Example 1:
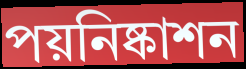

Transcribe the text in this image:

পয়নিষ্কাশন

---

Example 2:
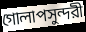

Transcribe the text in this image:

গোলাপসুন্দরী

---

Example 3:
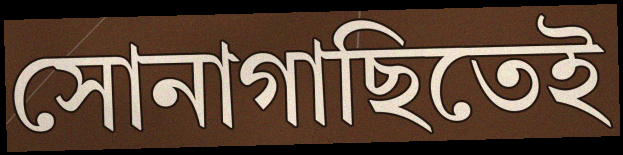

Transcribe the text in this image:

সোনাগাছিতেই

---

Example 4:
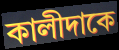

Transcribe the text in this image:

কালীদাকে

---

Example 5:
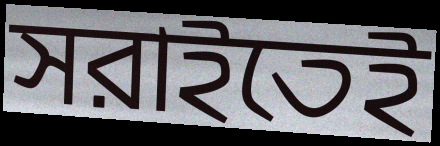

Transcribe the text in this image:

সরাইতেই